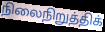
நிலைநிறுத்திக்